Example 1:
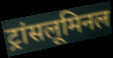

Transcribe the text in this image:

ट्रांसलूमिनल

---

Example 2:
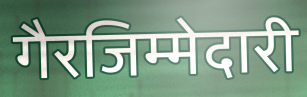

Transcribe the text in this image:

गैरजिम्मेदारी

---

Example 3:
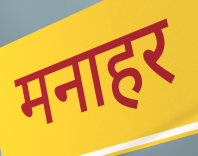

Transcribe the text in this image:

मनाहर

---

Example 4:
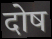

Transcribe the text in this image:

दोष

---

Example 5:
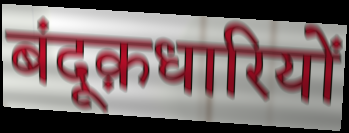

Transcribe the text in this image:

बंदूक़धारियों